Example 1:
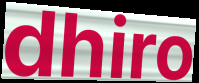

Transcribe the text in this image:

dhiro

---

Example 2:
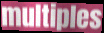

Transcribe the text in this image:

multiples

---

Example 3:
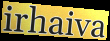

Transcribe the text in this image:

irhaiva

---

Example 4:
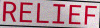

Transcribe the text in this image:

RELIEF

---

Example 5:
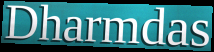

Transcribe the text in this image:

Dharmdas